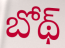
బోథ్